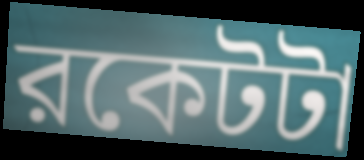
রকেটটা